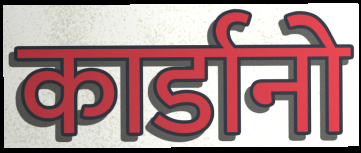
कार्डानो